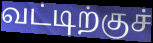
வட்டிற்குச்